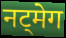
नट्मेग